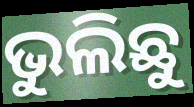
ଭୁଲିଛୁ